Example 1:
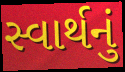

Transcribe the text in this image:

સ્વાર્થનું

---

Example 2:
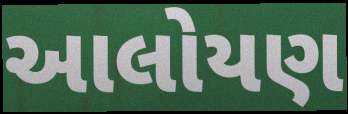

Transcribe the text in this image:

આલોયણ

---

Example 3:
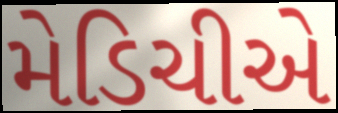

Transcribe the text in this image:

મેડિચીએ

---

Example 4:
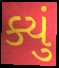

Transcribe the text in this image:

ક્યું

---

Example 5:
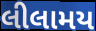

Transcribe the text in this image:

લીલામય